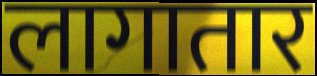
लागातार